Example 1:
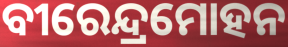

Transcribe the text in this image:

ବୀରେନ୍ଦ୍ରମୋହନ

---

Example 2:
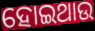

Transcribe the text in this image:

ହୋଇଥାଉ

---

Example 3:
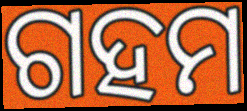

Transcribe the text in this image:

ଗହମ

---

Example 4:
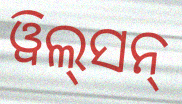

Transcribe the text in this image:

ୱିଲ୍‌ସନ୍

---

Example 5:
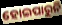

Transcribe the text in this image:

ହୋଇପାରୁନି